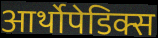
आर्थोपेडिक्स